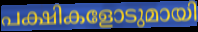
പക്ഷികളോടുമായി